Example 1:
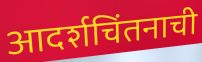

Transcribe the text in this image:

आदर्शचिंतनाची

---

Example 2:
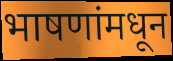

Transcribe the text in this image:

भाषणांमधून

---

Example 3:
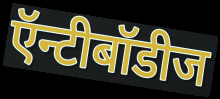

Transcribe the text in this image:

ऍन्टीबॉडीज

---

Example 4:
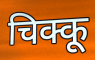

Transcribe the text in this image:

चिक्कू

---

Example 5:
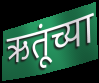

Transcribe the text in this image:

ऋतूंच्या